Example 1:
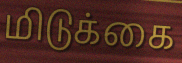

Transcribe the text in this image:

மிடுக்கை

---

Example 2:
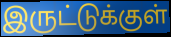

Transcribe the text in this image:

இருட்டுக்குள்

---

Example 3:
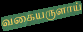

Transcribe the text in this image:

வகையருளாய்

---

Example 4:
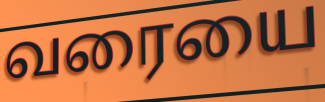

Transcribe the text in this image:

வரையை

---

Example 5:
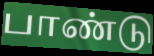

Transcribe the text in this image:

பாண்டு